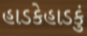
હાડકેહાડકું